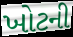
ખોટની